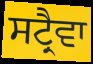
ਸਟ੍ਰੈਵਾ